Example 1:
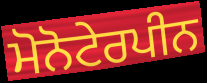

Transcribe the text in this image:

ਮੋਨੋਟੇਰਪੀਨ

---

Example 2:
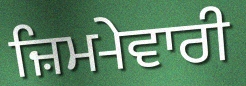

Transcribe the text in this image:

ਜ਼ਿਮ੍ਮੇਵਾਰੀ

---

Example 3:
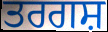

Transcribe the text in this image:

ਤਰਗਸ਼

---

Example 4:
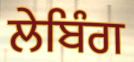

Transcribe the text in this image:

ਲੇਬਿੰਗ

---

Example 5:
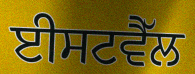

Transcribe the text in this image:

ਈਸਟਵੈੱਲ